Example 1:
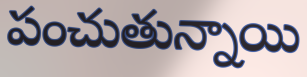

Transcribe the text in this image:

పంచుతున్నాయి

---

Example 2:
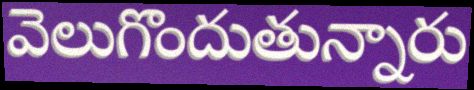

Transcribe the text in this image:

వెలుగొందుతున్నారు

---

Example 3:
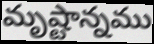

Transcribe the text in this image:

మృష్టాన్నము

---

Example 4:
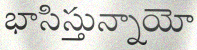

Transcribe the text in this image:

భాసిస్తున్నాయో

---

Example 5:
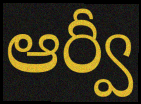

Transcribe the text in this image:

ఆర్వీ